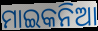
ମାଇକନିଆ